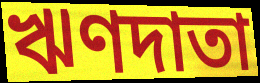
ঋণদাতা